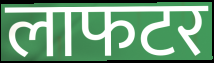
लाफटर